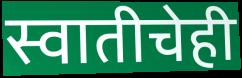
स्वातीचेही